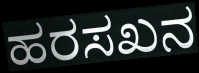
ಹರಸಖನ